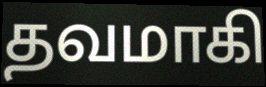
தவமாகி